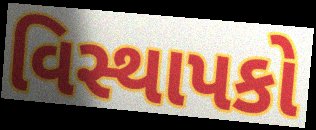
વિસ્થાપકો